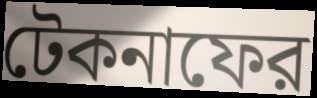
টেকনাফের